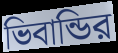
ভিবান্ডির